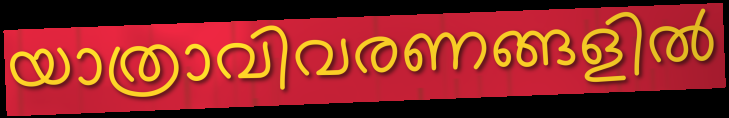
യാത്രാവിവരണങ്ങളിൽ